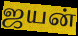
ஜயன்